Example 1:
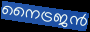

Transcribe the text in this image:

നൈട്രജൻ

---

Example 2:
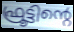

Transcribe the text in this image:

ഫ്രൂട്ടിന്റെ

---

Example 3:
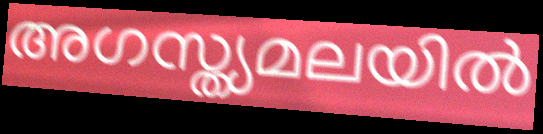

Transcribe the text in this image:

അഗസ്ത്യമലയിൽ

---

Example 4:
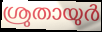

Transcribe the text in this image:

ശ്രുതായുർ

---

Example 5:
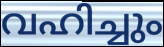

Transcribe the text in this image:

വഹിച്ചും